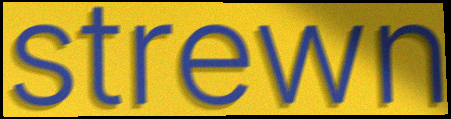
strewn